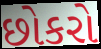
છોકરો